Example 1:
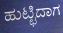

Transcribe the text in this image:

ಹುಟ್ಟಿದಾಗ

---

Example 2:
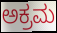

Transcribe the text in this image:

ಅಕ್ರಮ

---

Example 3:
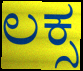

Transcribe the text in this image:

ಲಕ್ಸ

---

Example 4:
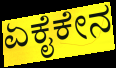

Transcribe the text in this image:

ಏಕೈಕೇನ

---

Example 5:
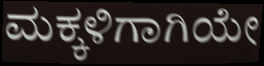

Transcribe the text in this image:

ಮಕ್ಕಳಿಗಾಗಿಯೇ